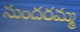
సుందరమ్మ